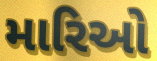
મારિઓ